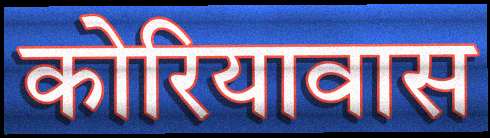
कोरियावास